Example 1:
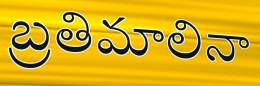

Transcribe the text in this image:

బ్రతిమాలినా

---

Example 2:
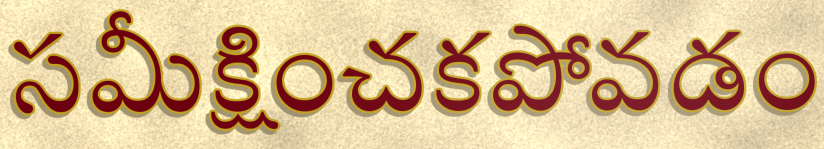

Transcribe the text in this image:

సమీక్షించకపోవడం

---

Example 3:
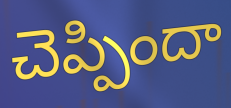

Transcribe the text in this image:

చెప్పిందా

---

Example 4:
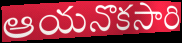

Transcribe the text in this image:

ఆయనొకసారి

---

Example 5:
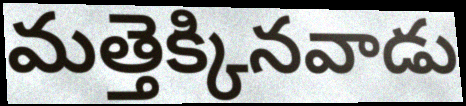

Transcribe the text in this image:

మత్తెక్కినవాడు